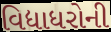
વિદ્યાધરોની